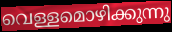
വെള്ളമൊഴിക്കുന്നു